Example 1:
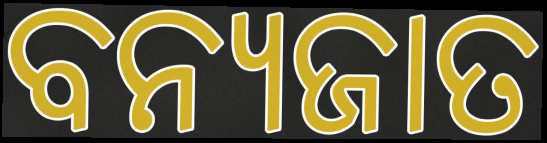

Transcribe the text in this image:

ବନ୍ୟଜାତ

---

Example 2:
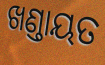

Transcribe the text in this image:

ଖଣ୍ଡାୟତ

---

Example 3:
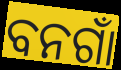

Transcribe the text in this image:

ବନଗାଁ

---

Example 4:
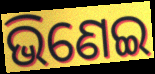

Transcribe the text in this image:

ଭିଣେଇ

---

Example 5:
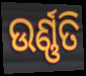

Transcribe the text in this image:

ଉର୍ଣ୍ଣତି